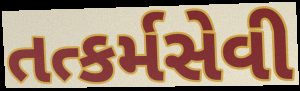
તત્કર્મસેવી